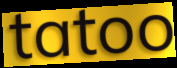
tatoo